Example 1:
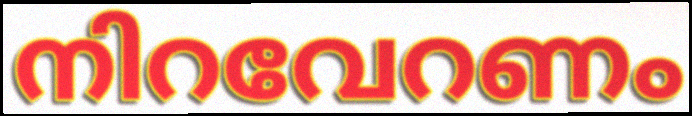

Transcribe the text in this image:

നിറവേറണം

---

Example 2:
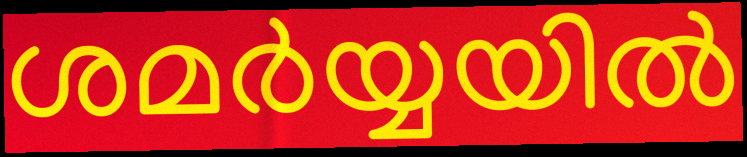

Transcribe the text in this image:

ശമർയ്യയിൽ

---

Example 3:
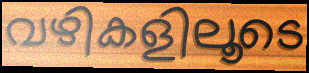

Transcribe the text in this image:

വഴികളിലൂടെ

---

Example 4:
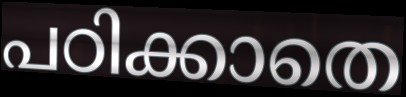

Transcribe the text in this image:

പഠിക്കാതെ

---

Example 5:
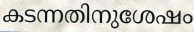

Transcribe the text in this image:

കടന്നതിനുശേഷം